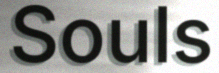
Souls